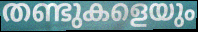
തണ്ടുകളെയും